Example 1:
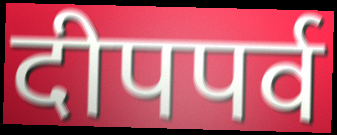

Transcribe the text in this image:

दीपपर्व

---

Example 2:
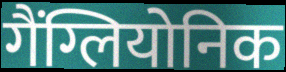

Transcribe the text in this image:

गैंग्लियोनिक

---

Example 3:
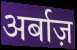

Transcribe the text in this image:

अर्बाज़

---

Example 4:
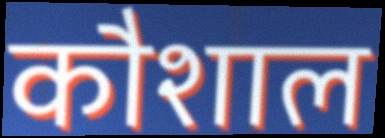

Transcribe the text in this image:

कौशाल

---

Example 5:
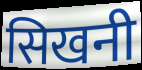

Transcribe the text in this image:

सिखनी